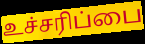
உச்சரிப்பை